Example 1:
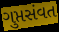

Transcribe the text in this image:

ગુપ્તસંવત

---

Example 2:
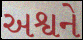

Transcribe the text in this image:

અશ્વને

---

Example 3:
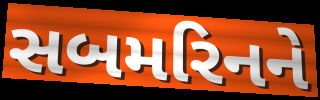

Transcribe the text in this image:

સબમરિનને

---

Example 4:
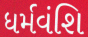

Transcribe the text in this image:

ધર્મવંશિ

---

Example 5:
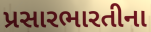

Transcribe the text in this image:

પ્રસારભારતીના